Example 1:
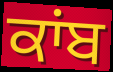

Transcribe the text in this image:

ਕਾਂਬ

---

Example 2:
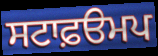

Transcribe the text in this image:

ਸਟਾਫ਼ੳਮਪ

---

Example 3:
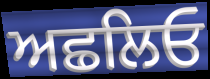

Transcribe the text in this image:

ਅਛਲਿਓ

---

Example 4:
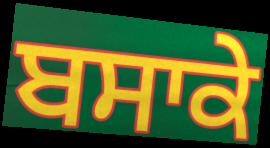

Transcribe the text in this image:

ਬਸਾਕੇ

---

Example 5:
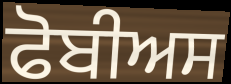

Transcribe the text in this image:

ਫੋਬੀਅਸ